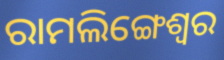
ରାମଲିଙ୍ଗେଶ୍ୱର